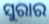
ସୁରାର